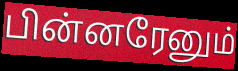
பின்னரேனும்